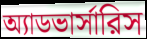
অ্যাডভার্সারিস